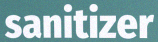
sanitizer